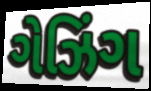
ગેઝિંગ